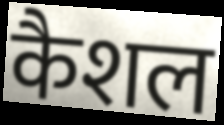
कैशल